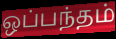
ஒப்பந்தம்